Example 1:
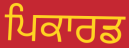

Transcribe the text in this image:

ਪਿਕਾਰਡ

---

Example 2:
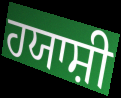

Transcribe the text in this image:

ਹਯਾਸ਼ੀ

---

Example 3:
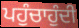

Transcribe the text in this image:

ਪਹੁੰਚਾਹੁੰਦੀ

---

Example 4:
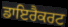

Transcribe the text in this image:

ਡਾਇਰੈਕਰਟ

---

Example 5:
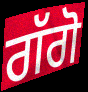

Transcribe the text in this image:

ਗੱਗੋ